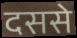
दससे